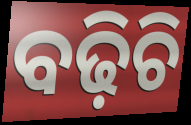
ବଢ଼ିଚି